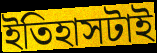
ইতিহাসটাই